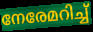
നേരേമറിച്ച്